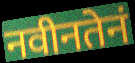
नवीनतेनं